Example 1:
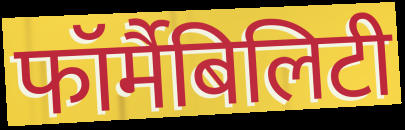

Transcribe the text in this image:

फॉर्मैबिलिटी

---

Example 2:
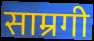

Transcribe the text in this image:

साम्रगी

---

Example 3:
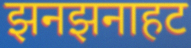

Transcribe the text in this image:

झनझनाहट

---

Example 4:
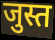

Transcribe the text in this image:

जुस्त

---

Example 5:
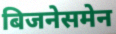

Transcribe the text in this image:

बिजनेसमेन